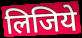
लिजिये